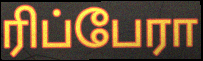
ரிப்பேரா